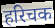
हरिचक